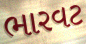
ભારવટ